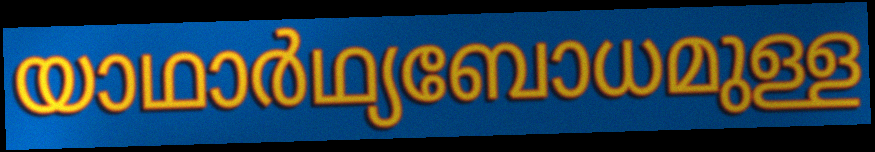
യാഥാർഥ്യബോധമുള്ള